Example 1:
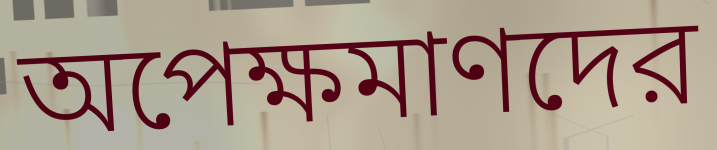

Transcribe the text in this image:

অপেক্ষমাণদের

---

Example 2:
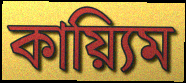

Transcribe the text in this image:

কায়্যিম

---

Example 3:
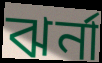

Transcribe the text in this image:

ঝর্না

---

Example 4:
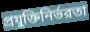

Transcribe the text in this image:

প্রযুক্তিনির্ভরতা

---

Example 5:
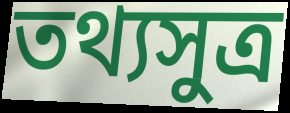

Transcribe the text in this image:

তথ্যসুত্র